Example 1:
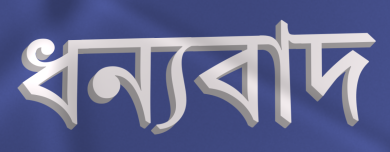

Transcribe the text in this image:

ধন্যবাদ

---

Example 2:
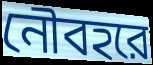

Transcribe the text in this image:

নৌবহরে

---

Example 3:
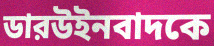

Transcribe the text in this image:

ডারউইনবাদকে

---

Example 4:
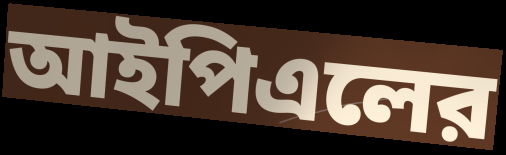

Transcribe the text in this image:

আইপিএলের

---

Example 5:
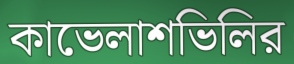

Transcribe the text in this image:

কাভেলাশভিলির